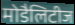
मोडैलिटीज